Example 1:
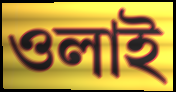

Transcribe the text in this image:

ওলাই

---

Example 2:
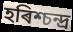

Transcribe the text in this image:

হৰিশ্চন্দ্ৰ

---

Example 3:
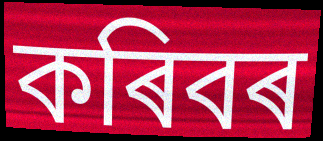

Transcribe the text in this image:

কৰিবৰ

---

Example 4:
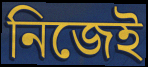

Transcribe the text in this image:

নিজেই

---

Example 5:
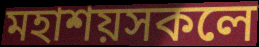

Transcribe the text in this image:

মহাশয়সকলে